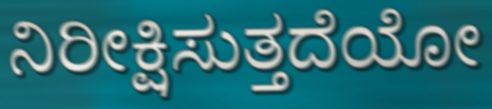
ನಿರೀಕ್ಷಿಸುತ್ತದೆಯೋ